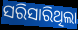
ସରିସାରିଥିଲା